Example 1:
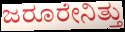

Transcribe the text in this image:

ಜರೂರೇನಿತ್ತು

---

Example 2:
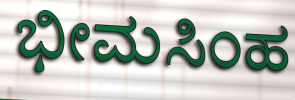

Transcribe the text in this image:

ಭೀಮಸಿಂಹ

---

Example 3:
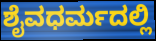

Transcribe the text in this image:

ಶೈವಧರ್ಮದಲ್ಲಿ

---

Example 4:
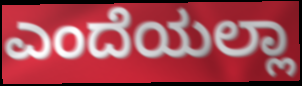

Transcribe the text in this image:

ಎಂದೆಯಲ್ಲಾ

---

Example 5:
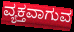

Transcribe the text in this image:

ವ್ಯಕ್ತವಾಗುವ